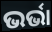
ଭର୍ଭା